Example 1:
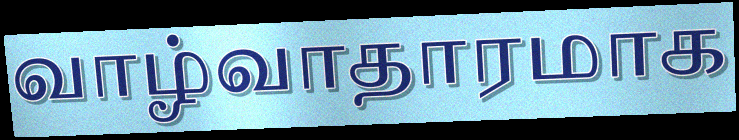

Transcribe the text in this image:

வாழ்வாதாரமாக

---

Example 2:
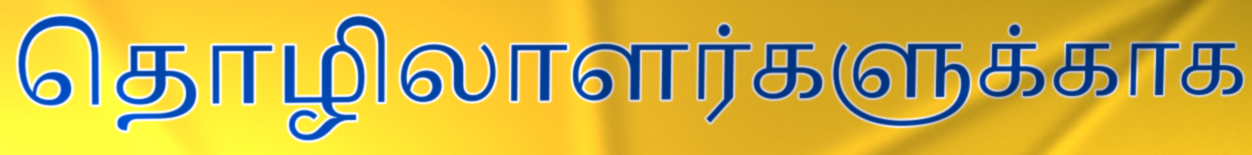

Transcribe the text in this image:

தொழிலாளர்களுக்காக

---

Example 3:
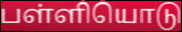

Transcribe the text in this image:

பள்ளியொடு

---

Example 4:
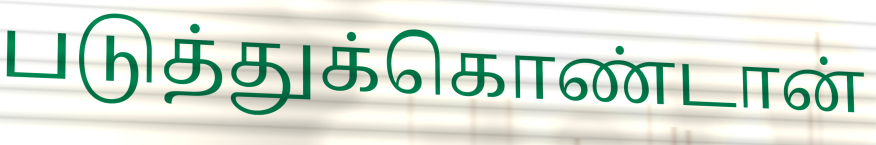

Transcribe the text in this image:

படுத்துக்கொண்டான்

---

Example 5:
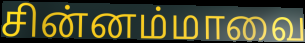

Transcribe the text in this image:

சின்னம்மாவை